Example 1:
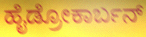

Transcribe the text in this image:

ಹೈಡ್ರೋಕಾರ್ಬನ್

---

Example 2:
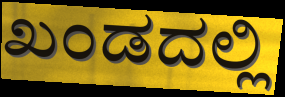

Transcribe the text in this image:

ಖಂಡದಲ್ಲಿ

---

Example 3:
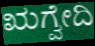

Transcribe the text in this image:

ಋಗ್ವೇದಿ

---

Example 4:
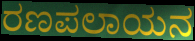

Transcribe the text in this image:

ರಣಪಲಾಯನ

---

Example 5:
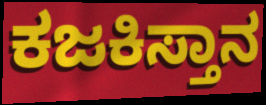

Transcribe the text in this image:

ಕಜಕಿಸ್ತಾನ